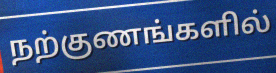
நற்குணங்களில்